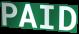
PAID